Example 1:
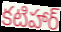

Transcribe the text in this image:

కటిహార్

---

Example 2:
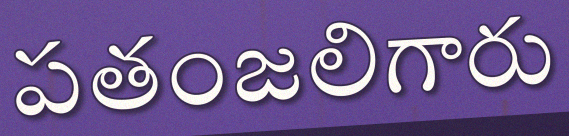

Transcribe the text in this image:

పతంజలిగారు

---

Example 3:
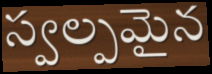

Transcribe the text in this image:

స్వల్పమైన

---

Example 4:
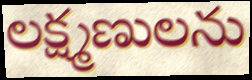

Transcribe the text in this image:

లక్ష్మణులను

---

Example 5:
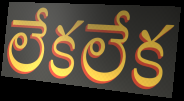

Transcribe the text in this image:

లేకలేక